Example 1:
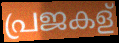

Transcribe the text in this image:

പ്രജകള്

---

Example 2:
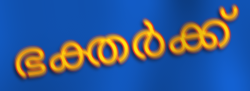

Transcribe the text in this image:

ഭക്തർക്ക്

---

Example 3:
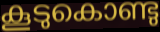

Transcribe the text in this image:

കൂടുകൊണ്ടു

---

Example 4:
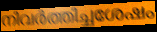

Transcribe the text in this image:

നിവർത്തിച്ചശേഷം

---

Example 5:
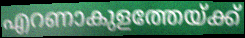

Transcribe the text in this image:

എറണാകുളത്തേയ്ക്ക്